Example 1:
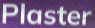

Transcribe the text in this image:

Plaster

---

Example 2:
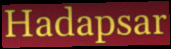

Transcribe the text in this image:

Hadapsar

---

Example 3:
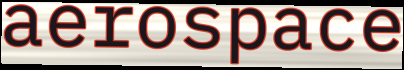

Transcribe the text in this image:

aerospace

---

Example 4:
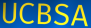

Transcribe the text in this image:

UCBSA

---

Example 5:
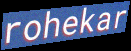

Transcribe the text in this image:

rohekar